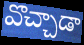
వొచ్చాడా